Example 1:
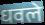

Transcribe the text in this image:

धवले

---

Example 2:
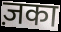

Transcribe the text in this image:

ज़का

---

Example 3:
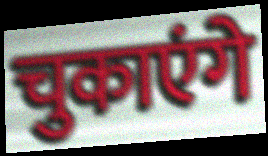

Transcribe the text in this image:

चुकाएंगे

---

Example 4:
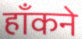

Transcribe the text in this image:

हाँकने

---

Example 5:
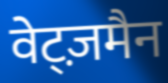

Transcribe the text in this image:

वेट्ज़मैन